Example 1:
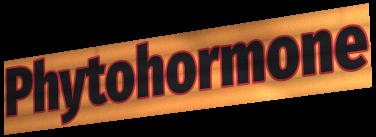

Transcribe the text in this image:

Phytohormone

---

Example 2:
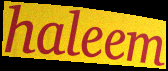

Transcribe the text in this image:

haleem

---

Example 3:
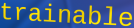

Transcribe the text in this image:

trainable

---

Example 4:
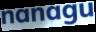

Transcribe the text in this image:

nanagu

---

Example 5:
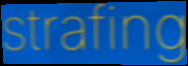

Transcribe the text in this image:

strafing